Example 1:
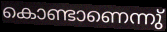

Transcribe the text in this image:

കൊണ്ടാണെന്നു്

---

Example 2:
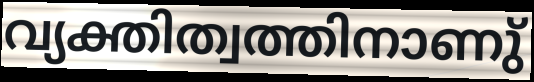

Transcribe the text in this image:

വ്യക്തിത്വത്തിനാണു്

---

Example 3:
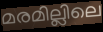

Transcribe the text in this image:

മരമില്ലിലെ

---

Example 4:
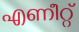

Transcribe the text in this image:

എണീറ്റ്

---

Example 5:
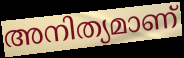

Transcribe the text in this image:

അനിത്യമാണ്